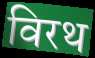
विरथ